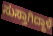
ಸುಸ್ತಾಗಿದ್ದಾಳೆ